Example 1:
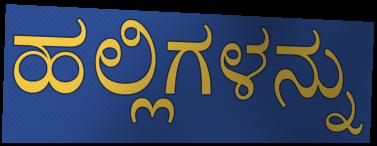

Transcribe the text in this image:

ಹಲ್ಲಿಗಳನ್ನು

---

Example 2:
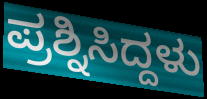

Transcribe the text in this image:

ಪ್ರಶ್ನಿಸಿದ್ದಳು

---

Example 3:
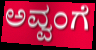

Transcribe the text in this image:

ಅವ್ವಂಗೆ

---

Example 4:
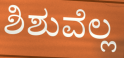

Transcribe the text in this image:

ಶಿಶುವೆಲ್ಲ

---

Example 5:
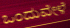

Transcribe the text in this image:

ಒಂದುವೇಳೆ